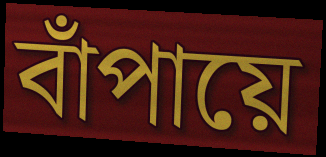
বাঁপায়ে